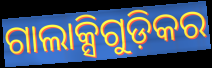
ଗାଲାକ୍ସିଗୁଡ଼ିକର